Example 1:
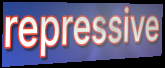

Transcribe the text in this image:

repressive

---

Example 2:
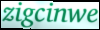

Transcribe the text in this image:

zigcinwe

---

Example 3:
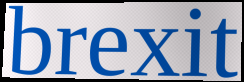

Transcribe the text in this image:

brexit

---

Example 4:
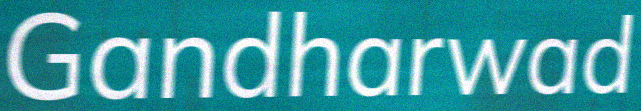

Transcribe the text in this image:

Gandharwad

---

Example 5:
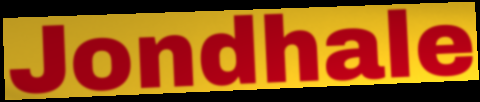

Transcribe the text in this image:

Jondhale